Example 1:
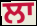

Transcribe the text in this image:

ਲਾ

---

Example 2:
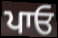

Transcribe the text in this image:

ਪਾਓ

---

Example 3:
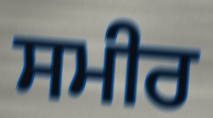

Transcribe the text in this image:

ਸਮੀਰ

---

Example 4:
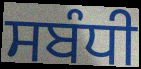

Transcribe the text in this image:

ਸਬੰਧੀ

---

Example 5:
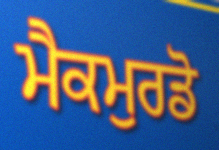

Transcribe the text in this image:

ਮੈਕਮੁਰਡੋ